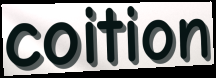
coition